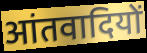
आंतवादियों